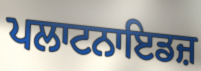
ਪਲਾਟਨਾਇਡਜ਼